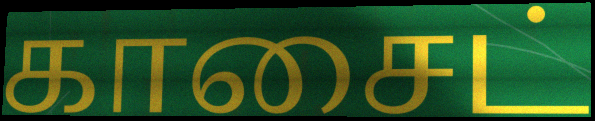
காசைட்